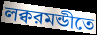
লক্বরমন্ডীতে